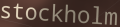
stockholm